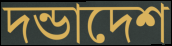
দন্ডাদেশ